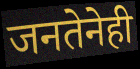
जनतेनेही